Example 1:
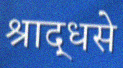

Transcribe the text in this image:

श्राद्धसे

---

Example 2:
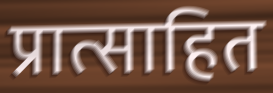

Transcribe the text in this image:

प्रात्साहित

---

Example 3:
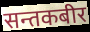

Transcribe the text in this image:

सन्तकबीर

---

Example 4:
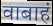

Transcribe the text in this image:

वाबाहं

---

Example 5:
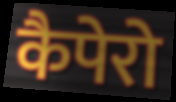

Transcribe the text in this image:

कैपेरो